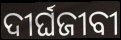
ଦୀର୍ଘଜୀବୀ